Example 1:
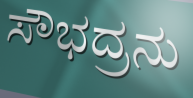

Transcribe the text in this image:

ಸೌಭದ್ರನು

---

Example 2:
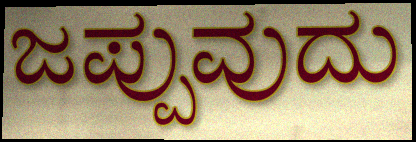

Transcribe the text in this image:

ಜಪ್ಪುವುದು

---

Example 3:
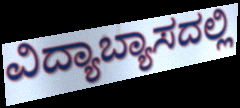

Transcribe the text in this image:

ವಿದ್ಯಾಬ್ಯಾಸದಲ್ಲಿ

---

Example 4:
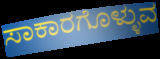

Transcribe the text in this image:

ಸಾಕಾರಗೊಳ್ಳುವ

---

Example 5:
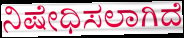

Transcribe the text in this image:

ನಿಷೇಧಿಸಲಾಗಿದೆ